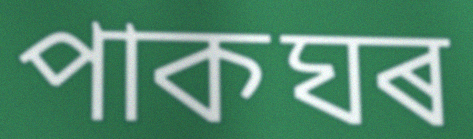
পাকঘৰ